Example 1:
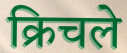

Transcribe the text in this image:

क्रिचले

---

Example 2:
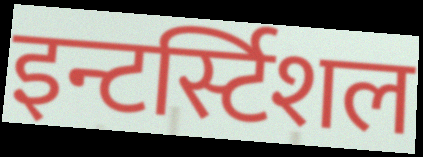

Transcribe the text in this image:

इन्टर्स्टिशल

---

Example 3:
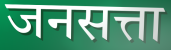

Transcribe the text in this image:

जनसत्ता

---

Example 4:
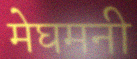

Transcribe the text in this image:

मेघमनी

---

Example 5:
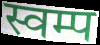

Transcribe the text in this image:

स्वम्प